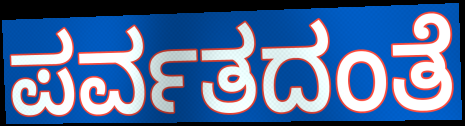
ಪರ್ವತದಂತೆ